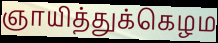
ஞாயித்துக்கெழம